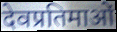
देवप्रतिमाओं